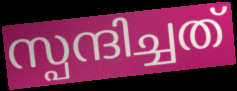
സ്പന്ദിച്ചത്